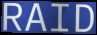
RAID